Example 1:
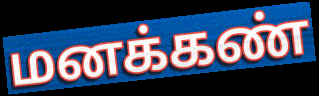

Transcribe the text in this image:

மனக்கண்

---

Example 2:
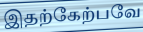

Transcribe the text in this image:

இதற்கேற்பவே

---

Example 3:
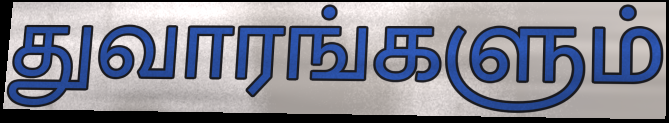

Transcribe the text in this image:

துவாரங்களும்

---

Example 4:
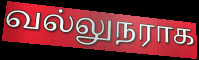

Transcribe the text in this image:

வல்லுநராக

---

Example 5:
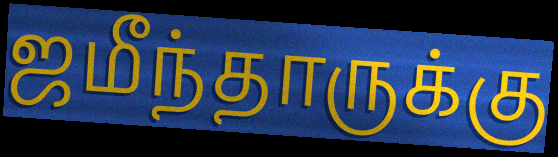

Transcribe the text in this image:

ஜமீந்தாருக்கு